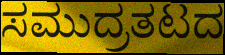
ಸಮುದ್ರತಟದ